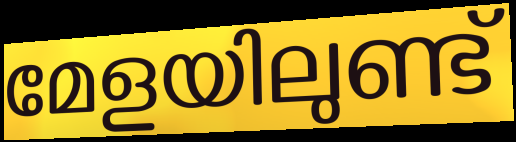
മേളയിലുണ്ട്